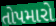
તોપમારો